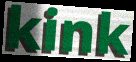
kink